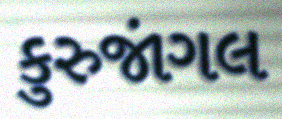
કુરુજાંગલ